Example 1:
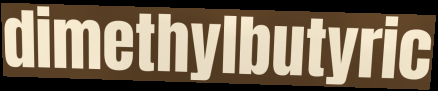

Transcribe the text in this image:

dimethylbutyric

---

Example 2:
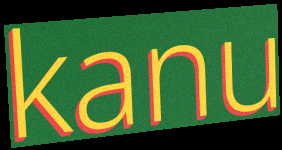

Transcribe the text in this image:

kanu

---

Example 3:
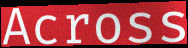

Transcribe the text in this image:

Across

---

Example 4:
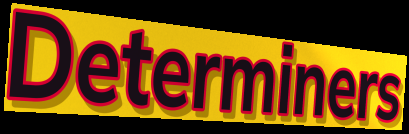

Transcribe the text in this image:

Determiners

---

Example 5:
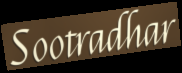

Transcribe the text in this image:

Sootradhar